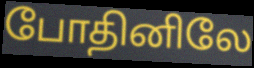
போதினிலே